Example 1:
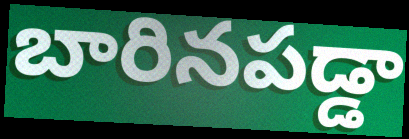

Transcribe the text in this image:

బారినపడ్డా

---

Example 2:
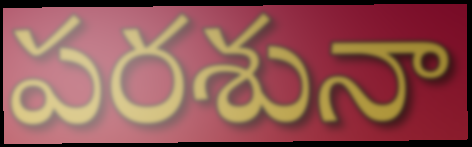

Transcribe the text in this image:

పరశునా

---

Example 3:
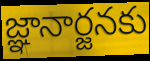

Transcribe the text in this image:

జ్ఞానార్జనకు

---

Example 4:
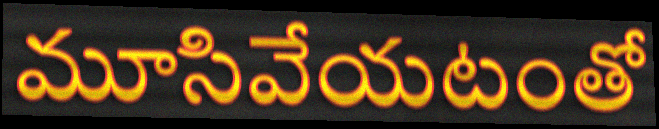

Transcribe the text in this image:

మూసివేయటంతో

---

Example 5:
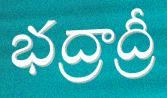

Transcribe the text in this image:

భద్రాద్రీ